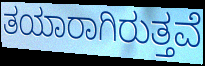
ತಯಾರಾಗಿರುತ್ತವೆ